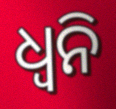
ଧ୍ବନି